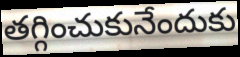
తగ్గించుకునేందుకు